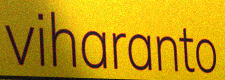
viharanto